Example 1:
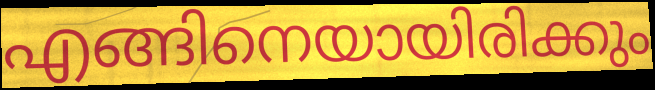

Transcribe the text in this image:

എങ്ങിനെയായിരിക്കും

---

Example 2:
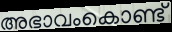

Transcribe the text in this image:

അഭാവംകൊണ്ട്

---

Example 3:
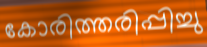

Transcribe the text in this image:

കോരിത്തരിപ്പിച്ചു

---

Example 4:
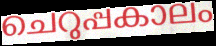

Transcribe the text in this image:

ചെറുപ്പകാലം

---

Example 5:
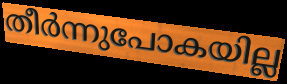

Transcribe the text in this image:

തീർന്നുപോകയില്ല